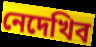
নেদেখিব